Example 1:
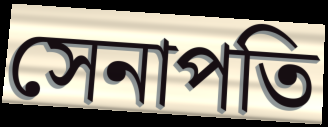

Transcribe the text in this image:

সেনাপতি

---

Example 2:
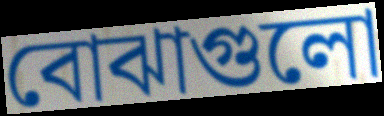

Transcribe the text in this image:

বোঝাগুলো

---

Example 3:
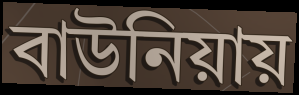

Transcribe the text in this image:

বাউনিয়ায়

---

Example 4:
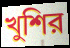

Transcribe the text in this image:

খুশির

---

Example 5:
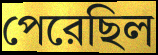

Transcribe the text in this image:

পেরেছিল